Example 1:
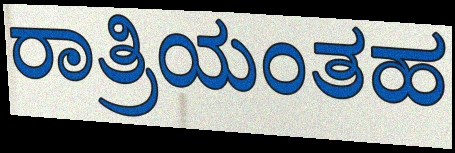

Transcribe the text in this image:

ರಾತ್ರಿಯಂತಹ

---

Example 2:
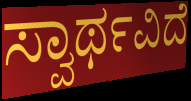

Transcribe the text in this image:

ಸ್ವಾರ್ಥವಿದೆ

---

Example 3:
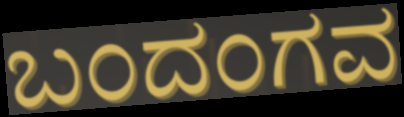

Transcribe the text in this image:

ಬಂದಂಗವ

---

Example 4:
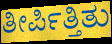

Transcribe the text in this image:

ತೀರ್ಪಿತ್ತಿತು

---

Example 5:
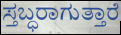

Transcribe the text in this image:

ಸ್ತಬ್ಧರಾಗುತ್ತಾರೆ